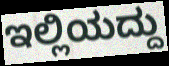
ಇಲ್ಲಿಯದ್ದು